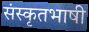
संस्कृतभाषी